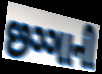
છગ્ગાની